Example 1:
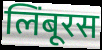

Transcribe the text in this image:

लिंबूरस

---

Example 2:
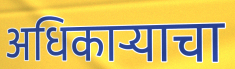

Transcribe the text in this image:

अधिकार्‍याचा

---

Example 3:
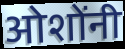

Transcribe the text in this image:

ओशोंनी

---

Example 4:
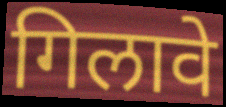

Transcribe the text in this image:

गिलावे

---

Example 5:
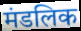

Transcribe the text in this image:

मंडलिक